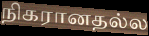
நிகரானதல்ல